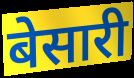
बेसारी